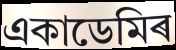
একাডেমিৰ